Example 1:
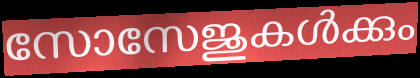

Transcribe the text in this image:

സോസേജുകൾക്കും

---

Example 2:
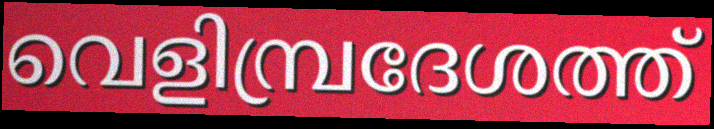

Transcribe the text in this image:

വെളിമ്പ്രദേശത്ത്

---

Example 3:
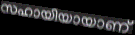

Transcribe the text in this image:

സഹായിയായാണ്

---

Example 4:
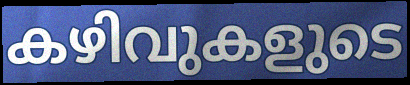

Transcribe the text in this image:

കഴിവുകളുടെ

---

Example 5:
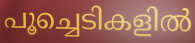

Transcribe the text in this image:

പൂച്ചെടികളിൽ